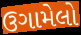
ઉગામેલો